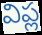
విప్ల